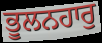
ਭੂਲਨਹਾਰੁ